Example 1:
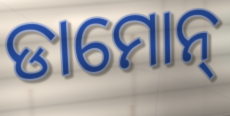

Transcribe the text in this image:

ଡାମୋନ୍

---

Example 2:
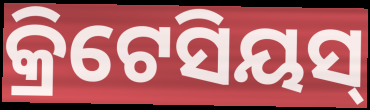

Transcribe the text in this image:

କ୍ରିଟେସିୟସ୍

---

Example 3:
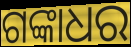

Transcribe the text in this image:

ଗଙ୍କାଧର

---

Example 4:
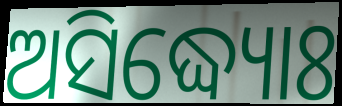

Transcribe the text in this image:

ଅସିଦ୍ଧ୍ୟୋଃ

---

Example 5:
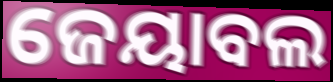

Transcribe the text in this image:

ଜେୟାବଲ